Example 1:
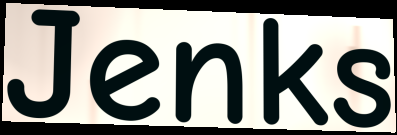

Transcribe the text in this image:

Jenks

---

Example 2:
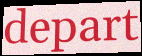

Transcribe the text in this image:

depart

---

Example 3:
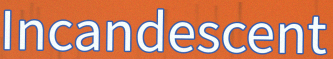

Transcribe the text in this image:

Incandescent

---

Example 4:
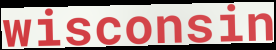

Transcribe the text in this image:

wisconsin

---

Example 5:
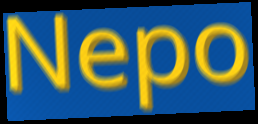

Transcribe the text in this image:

Nepo